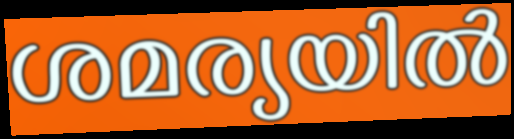
ശമര്യയിൽ